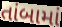
તાંબામાં